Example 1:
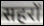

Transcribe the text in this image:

सहरों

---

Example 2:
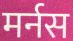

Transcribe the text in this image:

मर्नस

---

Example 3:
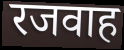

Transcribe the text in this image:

रजवाह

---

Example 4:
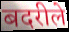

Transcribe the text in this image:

बदरीले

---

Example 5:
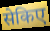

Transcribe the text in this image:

सेकिए